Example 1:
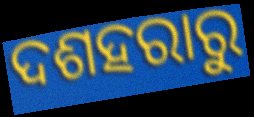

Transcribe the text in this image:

ଦଶହରାରୁ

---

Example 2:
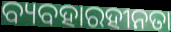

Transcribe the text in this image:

ବ୍ୟବହାରହୀନତା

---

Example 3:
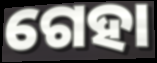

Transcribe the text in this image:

ଗେହା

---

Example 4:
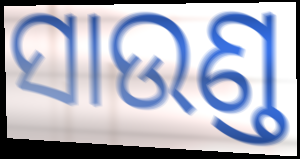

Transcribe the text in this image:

ସାଉଣ୍ଡ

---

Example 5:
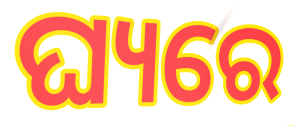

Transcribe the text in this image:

ଘ୍ୟରେ